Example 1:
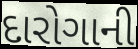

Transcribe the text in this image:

દારોગાની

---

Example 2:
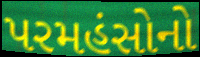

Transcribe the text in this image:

પરમહંસોનો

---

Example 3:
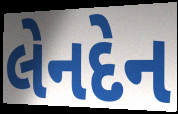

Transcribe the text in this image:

લેનદેન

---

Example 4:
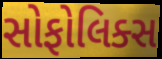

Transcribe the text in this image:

સોફોલિક્સ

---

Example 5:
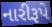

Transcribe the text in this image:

નારીરૂપે